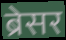
ब्रेसर